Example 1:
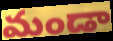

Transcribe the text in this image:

మండా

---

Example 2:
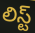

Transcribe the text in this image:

లిస్ట్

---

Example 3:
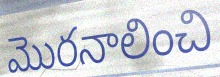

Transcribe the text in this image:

మొరనాలించి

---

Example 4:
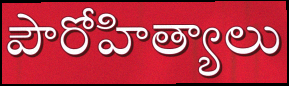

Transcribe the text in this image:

పౌరోహిత్యాలు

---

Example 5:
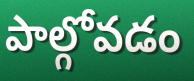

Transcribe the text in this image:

పాల్గోవడం